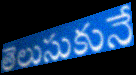
తెలుసుకునే